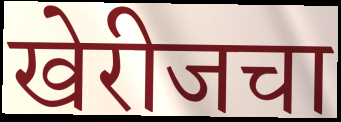
खेरीजचा